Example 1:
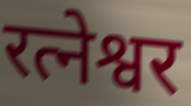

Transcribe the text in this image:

रत्नेश्वर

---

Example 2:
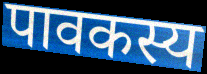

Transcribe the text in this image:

पावकस्य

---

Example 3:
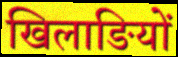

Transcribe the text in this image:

खिलाङियों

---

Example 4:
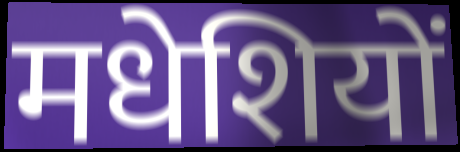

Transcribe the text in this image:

मधेशियों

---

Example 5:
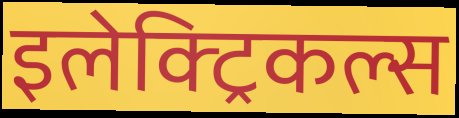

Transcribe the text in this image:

इलेक्ट्रिकल्‍स